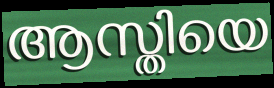
ആസ്തിയെ